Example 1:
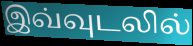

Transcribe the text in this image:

இவ்வுடலில்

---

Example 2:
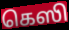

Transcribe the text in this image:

கெஸி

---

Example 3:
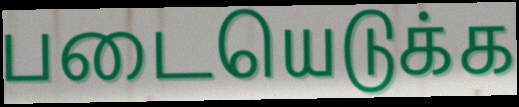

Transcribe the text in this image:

படையெடுக்க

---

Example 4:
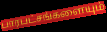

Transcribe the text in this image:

பாரபட்சங்களையும்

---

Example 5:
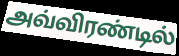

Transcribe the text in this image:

அவ்விரண்டில்